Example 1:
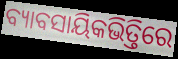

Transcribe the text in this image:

ବ୍ୟାବସାୟିକଭିତ୍ତିରେ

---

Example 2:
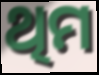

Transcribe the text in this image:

ଥିମ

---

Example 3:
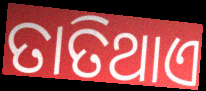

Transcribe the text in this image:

ତାତିଥାଏ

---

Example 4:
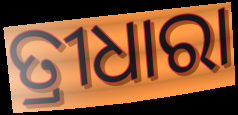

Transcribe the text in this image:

ତ୍ରୀଧାରା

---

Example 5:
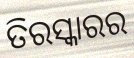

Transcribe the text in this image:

ତିରସ୍କାରର